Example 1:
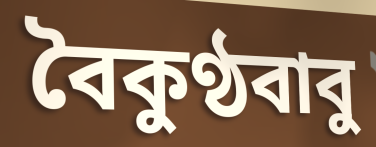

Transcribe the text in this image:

বৈকুণ্ঠবাবু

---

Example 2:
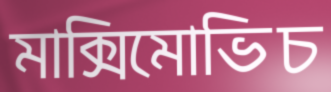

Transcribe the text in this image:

মাক্সিমোভিচ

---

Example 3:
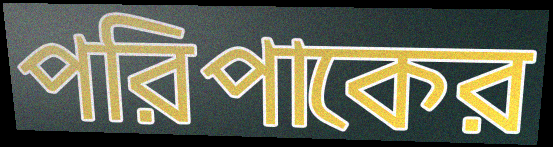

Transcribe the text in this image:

পরিপাকের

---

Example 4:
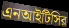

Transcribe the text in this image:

এনআইটিসির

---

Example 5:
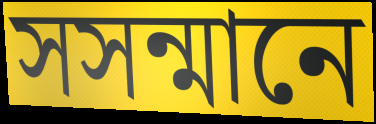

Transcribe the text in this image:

সসন্মানে